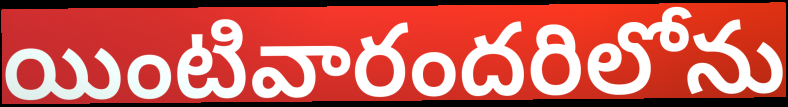
యింటివారందరిలోను